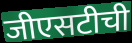
जीएसटीची